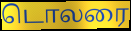
டொலரை